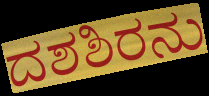
ದಶಶಿರನು